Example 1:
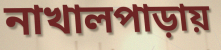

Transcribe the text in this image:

নাখালপাড়ায়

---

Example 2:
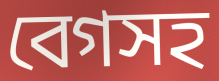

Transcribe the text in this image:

বেগসহ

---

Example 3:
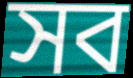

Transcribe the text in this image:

সব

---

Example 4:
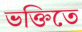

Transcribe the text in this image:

ভক্তিতে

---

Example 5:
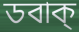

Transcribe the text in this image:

ডবাক্